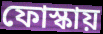
ফোস্কায়